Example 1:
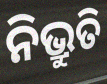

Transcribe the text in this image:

ନିଭ୍ରୁତି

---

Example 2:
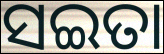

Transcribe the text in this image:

ସଇତା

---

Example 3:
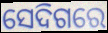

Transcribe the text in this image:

ସେଦିଗରେ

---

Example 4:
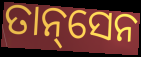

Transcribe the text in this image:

ତାନ୍‌ସେନ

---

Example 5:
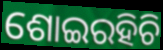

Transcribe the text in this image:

ଶୋଇରହିଚି